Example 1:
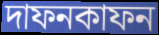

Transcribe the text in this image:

দাফনকাফন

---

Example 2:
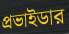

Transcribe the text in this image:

প্রভাইডার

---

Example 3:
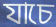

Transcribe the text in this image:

যাচে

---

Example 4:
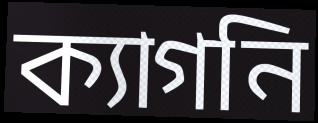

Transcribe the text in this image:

ক্যাগনি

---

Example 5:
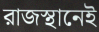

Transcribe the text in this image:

রাজস্থানেই